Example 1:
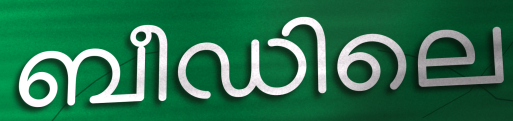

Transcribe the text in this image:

ബീഡിലെ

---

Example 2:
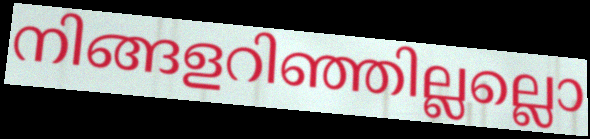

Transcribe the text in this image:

നിങ്ങളറിഞ്ഞില്ലല്ലൊ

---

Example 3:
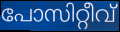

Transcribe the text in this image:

പോസിറ്റീവ്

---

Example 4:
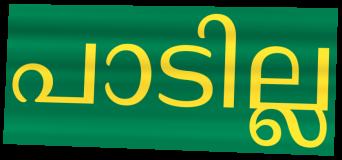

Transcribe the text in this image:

പാടില്ല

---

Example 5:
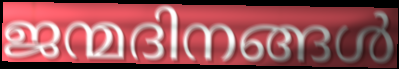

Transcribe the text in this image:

ജന്മദിനങ്ങൾ